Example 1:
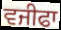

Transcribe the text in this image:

ਵਜੀਫਾ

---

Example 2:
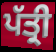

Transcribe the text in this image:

ਪੱਤ੍ਰੀ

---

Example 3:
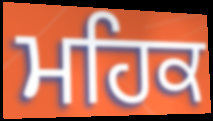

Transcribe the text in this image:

ਮਹਿਕ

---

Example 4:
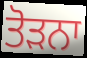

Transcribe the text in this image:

ਤੋੜਨਾ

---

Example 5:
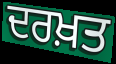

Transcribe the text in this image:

ਦਰਖ਼ਤ